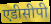
एडीसीपी